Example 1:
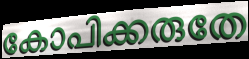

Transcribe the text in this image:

കോപിക്കരുതേ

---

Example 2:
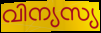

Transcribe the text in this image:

വിന്യസ്യ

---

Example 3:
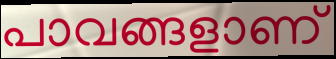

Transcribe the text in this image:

പാവങ്ങളാണ്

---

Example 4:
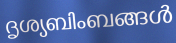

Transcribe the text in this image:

ദൃശ്യബിംബങ്ങൾ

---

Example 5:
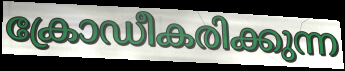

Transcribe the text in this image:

ക്രോഡീകരിക്കുന്ന